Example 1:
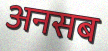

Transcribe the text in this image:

अनसब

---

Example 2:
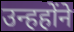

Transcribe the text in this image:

उन्हहोंने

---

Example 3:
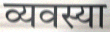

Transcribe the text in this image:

व्यवस्या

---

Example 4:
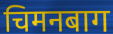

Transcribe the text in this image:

चिमनबाग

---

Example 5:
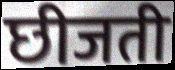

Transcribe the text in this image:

छीजती